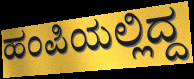
ಹಂಪಿಯಲ್ಲಿದ್ದ